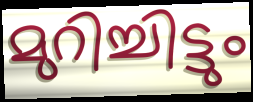
മുറിച്ചിട്ടും